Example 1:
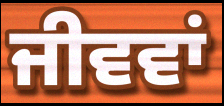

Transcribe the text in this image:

ਜੀਵਵਾਂ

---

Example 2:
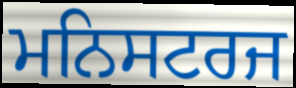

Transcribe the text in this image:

ਮਨਿਸਟਰਜ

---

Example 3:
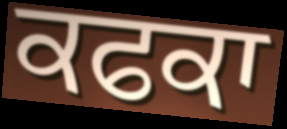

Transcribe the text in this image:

ਕਫਕਾ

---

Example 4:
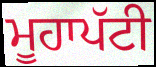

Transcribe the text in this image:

ਮੂਹਾਪੱਟੀ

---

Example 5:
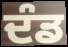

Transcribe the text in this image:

ਦੰਡ